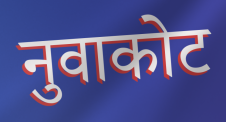
नुवाकोट